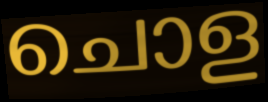
ചൊള